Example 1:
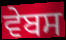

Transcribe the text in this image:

ਵੇਬਸ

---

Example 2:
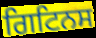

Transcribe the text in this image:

ਗਿਟਿਨਸ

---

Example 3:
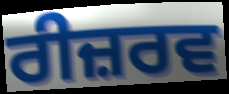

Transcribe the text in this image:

ਰੀਜ਼ਰਵ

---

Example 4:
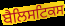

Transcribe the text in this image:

ਬੈਲਿਸਟਿਕਸ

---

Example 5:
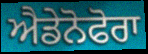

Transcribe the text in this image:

ਐਡੇਨੋਫੋਰਾ